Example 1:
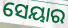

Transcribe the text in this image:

ସେୟାର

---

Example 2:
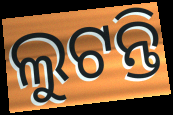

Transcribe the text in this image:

ଲୁଟନ୍ତି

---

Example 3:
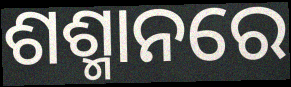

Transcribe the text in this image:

ଶଶ୍ମାନରେ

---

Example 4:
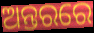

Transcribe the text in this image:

ଅନ୍ତରରେ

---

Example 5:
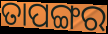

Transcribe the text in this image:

ତାପଙ୍ଗର